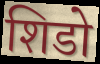
शिडो